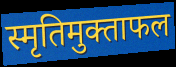
स्मृतिमुक्ताफल